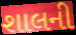
શાલની